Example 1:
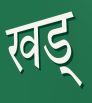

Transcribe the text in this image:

खड्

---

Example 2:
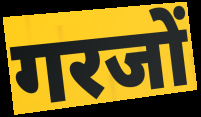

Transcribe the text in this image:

गरजों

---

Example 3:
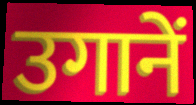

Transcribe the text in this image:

उगानें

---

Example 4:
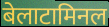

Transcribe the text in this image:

बेलाटामिनल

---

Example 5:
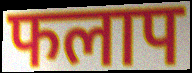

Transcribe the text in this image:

फलाप